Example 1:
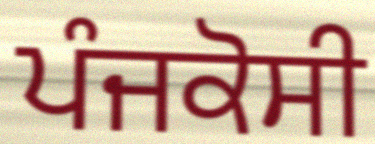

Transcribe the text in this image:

ਪੰਜਕੋਸੀ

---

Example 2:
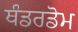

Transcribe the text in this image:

ਥੰਡਰਡੋਮ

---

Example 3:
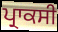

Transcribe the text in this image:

ਪ੍ਰਾਕਸੀ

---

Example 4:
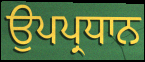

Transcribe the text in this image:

ਉਪਪ੍ਰਧਾਨ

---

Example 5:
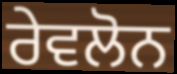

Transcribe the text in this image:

ਰੇਵਲੋਨ